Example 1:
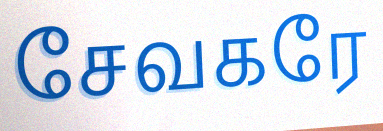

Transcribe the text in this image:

சேவகரே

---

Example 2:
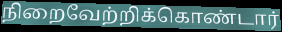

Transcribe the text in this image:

நிறைவேற்றிக்கொண்டார்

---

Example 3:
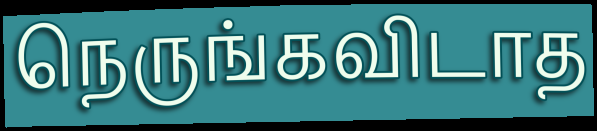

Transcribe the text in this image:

நெருங்கவிடாத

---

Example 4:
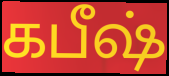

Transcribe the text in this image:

கபீஷ்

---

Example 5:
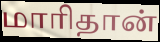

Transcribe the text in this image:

மாரிதான்